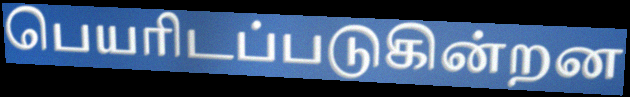
பெயரிடப்படுகின்றன